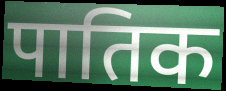
पातिक